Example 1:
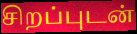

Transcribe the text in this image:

சிறப்புடன்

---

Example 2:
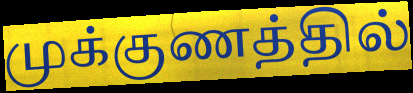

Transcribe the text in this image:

முக்குணத்தில்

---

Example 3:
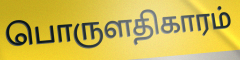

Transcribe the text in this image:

பொருளதிகாரம்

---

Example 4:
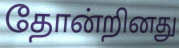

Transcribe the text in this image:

தோன்றினது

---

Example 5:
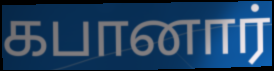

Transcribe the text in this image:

கபானார்